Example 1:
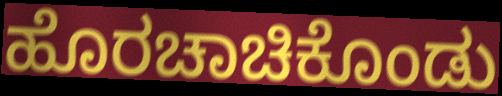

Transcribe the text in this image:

ಹೊರಚಾಚಿಕೊಂಡು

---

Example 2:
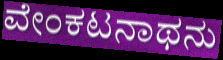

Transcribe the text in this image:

ವೇಂಕಟನಾಥನು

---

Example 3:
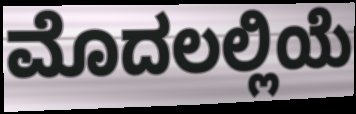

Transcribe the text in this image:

ಮೊದಲಲ್ಲಿಯೆ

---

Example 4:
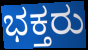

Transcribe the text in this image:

ಭಕ್ತರು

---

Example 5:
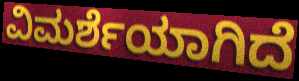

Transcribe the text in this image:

ವಿಮರ್ಶೆಯಾಗಿದೆ